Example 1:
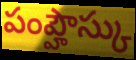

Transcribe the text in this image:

పంప్హౌస్కు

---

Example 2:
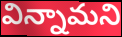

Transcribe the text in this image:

విన్నామని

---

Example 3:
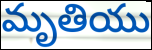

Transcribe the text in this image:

మృతియు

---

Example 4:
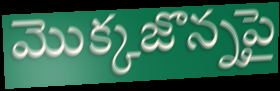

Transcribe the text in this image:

మొక్కజొన్నపై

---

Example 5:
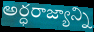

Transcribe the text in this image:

అర్ధరాజ్యాన్ని